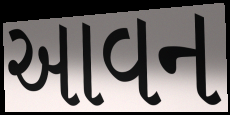
આવન